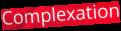
Complexation